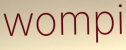
wompi